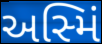
અસ્મિં